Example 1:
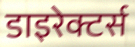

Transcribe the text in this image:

डाइरेक्टर्स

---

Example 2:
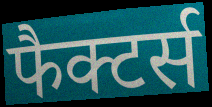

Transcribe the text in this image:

फैक्टर्स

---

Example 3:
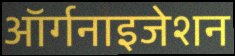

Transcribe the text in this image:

ऑर्गनाइजेशन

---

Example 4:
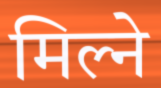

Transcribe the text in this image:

मिल्ने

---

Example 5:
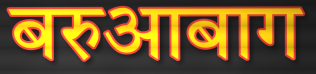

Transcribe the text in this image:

बरुआबाग